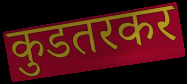
कुडतरकर